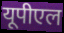
यूपीएल